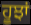
ਹੂਝਾਂ